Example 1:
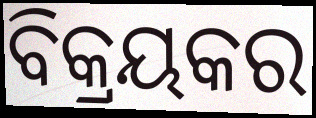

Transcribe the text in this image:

ବିକ୍ରୟକର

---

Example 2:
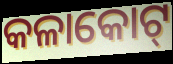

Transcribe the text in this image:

କଳାକୋଟ୍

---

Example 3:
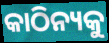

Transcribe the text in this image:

କାଠିନ୍ୟକୁ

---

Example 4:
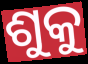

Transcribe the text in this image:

ଶୁକୁ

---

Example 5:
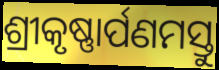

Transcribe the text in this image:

ଶ୍ରୀକୃଷ୍ଣାର୍ପଣମସ୍ତୁ